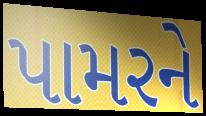
પામરને